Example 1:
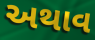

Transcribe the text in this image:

અથાવ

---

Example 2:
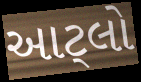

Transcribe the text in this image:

આટ્લો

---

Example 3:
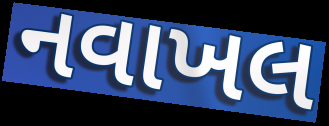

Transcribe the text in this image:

નવાખલ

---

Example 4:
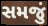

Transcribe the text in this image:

સમજું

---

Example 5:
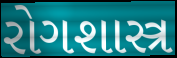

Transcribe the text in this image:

રોગશાસ્ત્ર